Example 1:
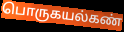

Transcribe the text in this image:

பொருகயல்கண்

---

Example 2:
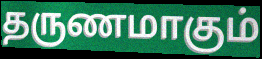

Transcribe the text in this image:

தருணமாகும்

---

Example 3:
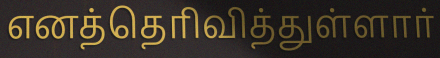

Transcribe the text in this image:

எனத்தெரிவித்துள்ளார்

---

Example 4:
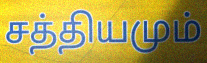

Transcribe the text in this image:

சத்தியமும்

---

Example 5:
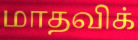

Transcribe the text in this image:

மாதவிக்